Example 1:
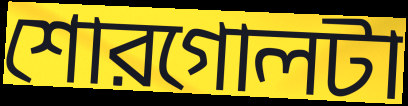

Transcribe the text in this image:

শোরগোলটা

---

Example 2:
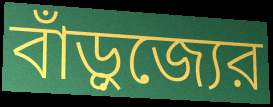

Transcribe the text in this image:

বাঁড়ুজ্যের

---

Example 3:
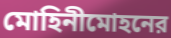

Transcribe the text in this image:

মোহিনীমোহনের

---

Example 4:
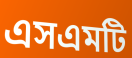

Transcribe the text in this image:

এসএমটি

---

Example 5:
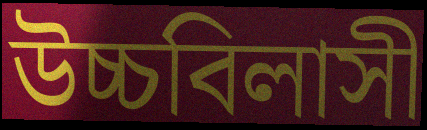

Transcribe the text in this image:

উচ্চবিলাসী